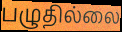
பழுதில்லை